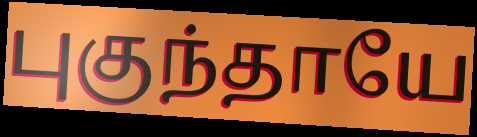
புகுந்தாயே